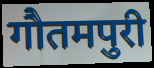
गौतमपुरी